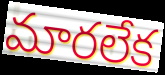
మారలేక